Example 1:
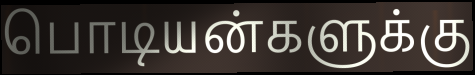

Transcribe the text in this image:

பொடியன்களுக்கு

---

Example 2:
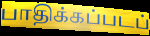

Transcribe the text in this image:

பாதிக்கப்படப்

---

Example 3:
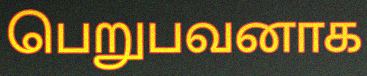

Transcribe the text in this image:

பெறுபவனாக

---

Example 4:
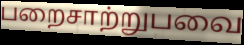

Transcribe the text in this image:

பறைசாற்றுபவை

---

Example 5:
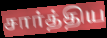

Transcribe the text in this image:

சார்த்திய